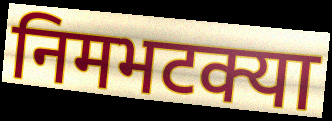
निमभटक्या